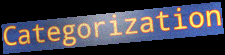
Categorization